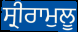
ਸ੍ਰੀਰਾਮੁਲੂ